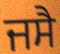
ਜਸੈ